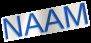
NAAM